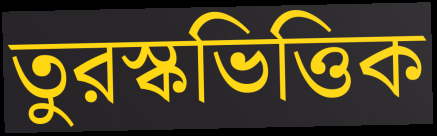
তুরস্কভিত্তিক